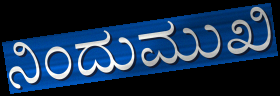
ನಿಂದುಮುಖಿ